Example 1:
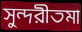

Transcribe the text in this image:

সুন্দরীতমা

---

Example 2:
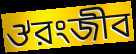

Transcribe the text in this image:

ঔরংজীব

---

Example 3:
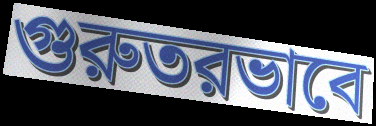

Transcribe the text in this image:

গুরুতরভাবে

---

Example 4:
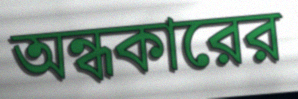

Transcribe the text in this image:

অন্ধকারের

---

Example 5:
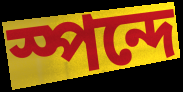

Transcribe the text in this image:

স্পন্দে